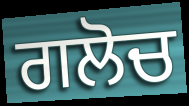
ਗਲੋਚ